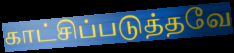
காட்சிப்படுத்தவே